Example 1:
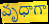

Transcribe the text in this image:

వృధాగా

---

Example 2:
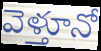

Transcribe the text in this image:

వెళ్తూనో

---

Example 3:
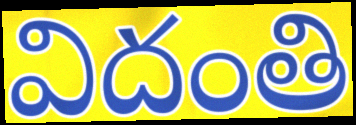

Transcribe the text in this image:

విదంతి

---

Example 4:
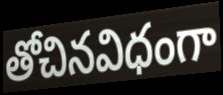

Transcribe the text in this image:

తోచినవిధంగా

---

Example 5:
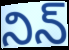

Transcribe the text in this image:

నిన్